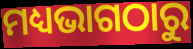
ମଧ୍ୟଭାଗଠାରୁ